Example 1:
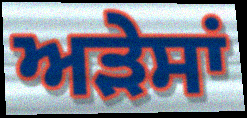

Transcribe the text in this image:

ਅੜੇਸਾਂ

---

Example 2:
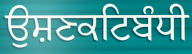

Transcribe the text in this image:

ਉਸ਼ਣਕਟਿਬੰਧੀ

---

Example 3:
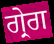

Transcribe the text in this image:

ਗ੍ਰੇਗ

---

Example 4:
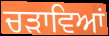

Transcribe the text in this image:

ਚੜਾਵਿਆਂ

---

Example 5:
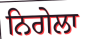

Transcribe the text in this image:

ਨਿਗੇਲਾ